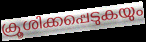
ക്രൂശിക്കപ്പെടുകയും